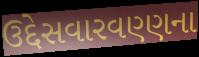
ઉદ્દેસવારવણ્ણના